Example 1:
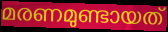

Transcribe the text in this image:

മരണമുണ്ടായത്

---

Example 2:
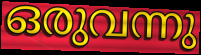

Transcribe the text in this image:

ഒരുവന്നു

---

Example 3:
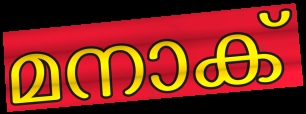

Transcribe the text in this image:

മനാക്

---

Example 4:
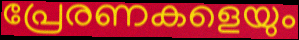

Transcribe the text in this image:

പ്രേരണകളെയും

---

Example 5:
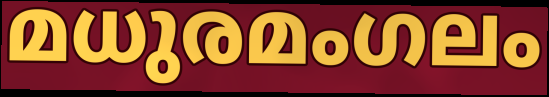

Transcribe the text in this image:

മധുരമംഗലം